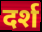
दर्श